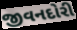
જીવનદોરી